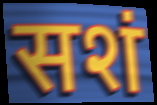
सशं